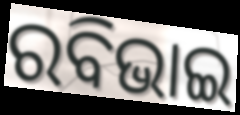
ରବିଭାଇ